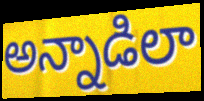
అన్నాడిలా